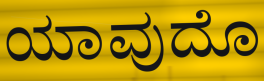
ಯಾವುದೊ